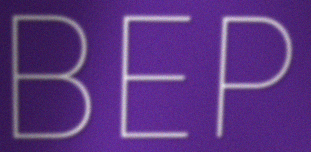
BEP